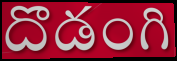
దొడంగి